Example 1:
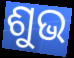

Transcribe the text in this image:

ଶୁଭ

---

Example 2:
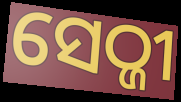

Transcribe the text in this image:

ସେଠ୍ଜୀ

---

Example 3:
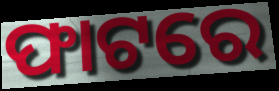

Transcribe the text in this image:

ଫାଟରେ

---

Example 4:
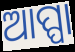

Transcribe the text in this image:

ଆପ୍ପା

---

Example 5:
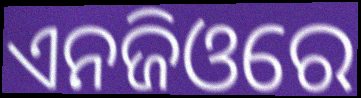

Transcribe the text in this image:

ଏନଜିଓରେ